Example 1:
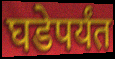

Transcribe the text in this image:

घडेपर्यंत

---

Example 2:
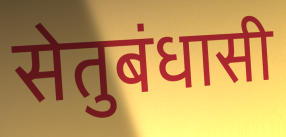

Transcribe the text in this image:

सेतुबंधासी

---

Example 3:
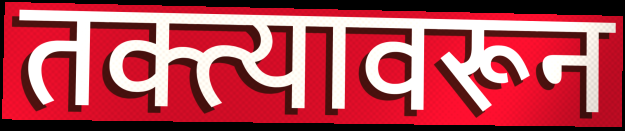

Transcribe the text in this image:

तक्त्यावरून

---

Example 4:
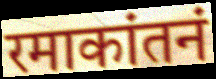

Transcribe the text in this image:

रमाकांतनं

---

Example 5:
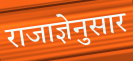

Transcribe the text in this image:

राजाज्ञेनुसार